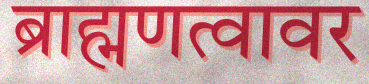
ब्राह्मणत्वावर